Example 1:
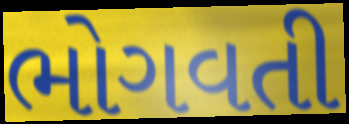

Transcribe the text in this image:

ભોગવતી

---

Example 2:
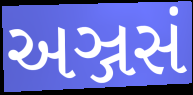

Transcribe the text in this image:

અઞ્જસં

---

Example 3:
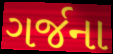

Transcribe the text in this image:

ગર્જના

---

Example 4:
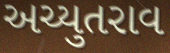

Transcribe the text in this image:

અચ્યુતરાવ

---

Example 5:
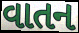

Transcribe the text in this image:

વાતન